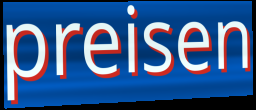
preisen